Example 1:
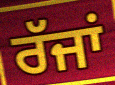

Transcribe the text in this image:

ਰੱਜਾਂ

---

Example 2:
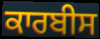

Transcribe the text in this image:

ਕਾਰਬੀਸ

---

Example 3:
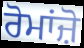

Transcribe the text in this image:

ਰੋਮਾਂਜ਼ੋ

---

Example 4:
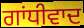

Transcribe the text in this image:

ਗਾਂਧੀਵਾਦ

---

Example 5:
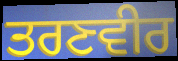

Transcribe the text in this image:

ਤਰਣਵੀਰ